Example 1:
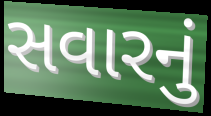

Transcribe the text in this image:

સવારનું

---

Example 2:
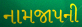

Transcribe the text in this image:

નામજાપની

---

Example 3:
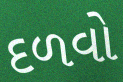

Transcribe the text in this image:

દળવો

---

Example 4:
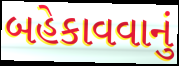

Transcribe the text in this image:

બહેકાવવાનું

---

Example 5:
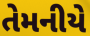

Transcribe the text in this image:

તેમનીયે